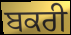
ਬਕਰੀ